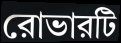
রোভারটি